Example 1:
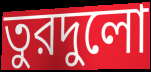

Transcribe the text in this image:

তুরদুলো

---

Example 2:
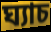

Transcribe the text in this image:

ঘ্যাচ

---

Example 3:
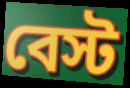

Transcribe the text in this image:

বেস্ট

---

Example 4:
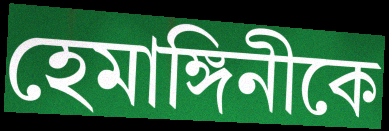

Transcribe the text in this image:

হেমাঙ্গিনীকে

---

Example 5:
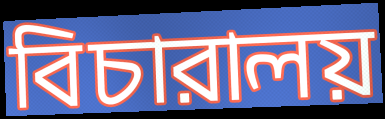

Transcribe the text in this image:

বিচারালয়